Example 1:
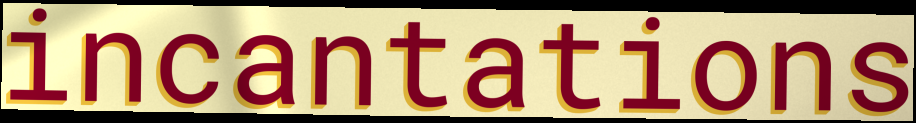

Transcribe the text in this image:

incantations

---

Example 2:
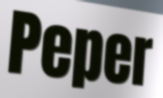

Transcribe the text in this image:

Peper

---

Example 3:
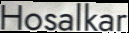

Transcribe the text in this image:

Hosalkar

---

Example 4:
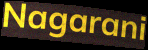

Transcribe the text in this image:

Nagarani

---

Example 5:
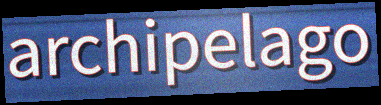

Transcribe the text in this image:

archipelago